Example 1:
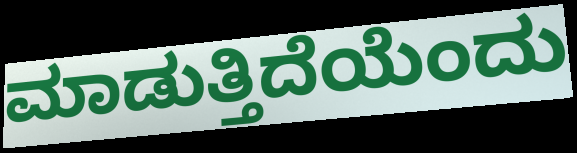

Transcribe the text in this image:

ಮಾಡುತ್ತಿದೆಯೆಂದು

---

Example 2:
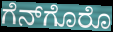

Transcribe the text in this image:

ಗೆನ್‌ಗೊರೊ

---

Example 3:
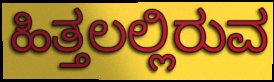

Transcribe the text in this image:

ಹಿತ್ತಲಲ್ಲಿರುವ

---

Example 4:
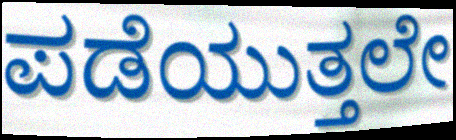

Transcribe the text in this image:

ಪಡೆಯುತ್ತಲೇ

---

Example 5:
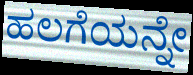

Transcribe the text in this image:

ಹಲಗೆಯನ್ನೇ